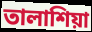
তালাশিয়া